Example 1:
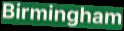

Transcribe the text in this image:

Birmingham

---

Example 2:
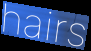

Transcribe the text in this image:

hairs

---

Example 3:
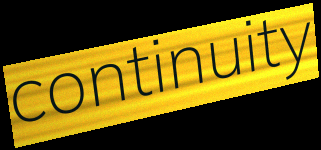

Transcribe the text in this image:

continuity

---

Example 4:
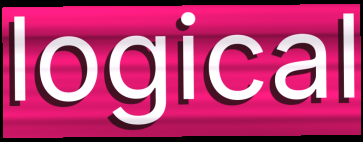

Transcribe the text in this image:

logical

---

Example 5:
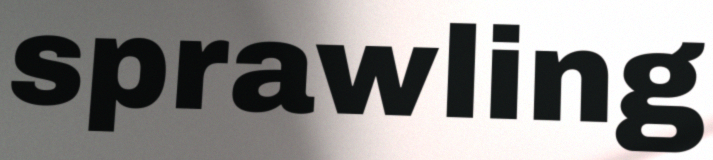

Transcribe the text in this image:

sprawling